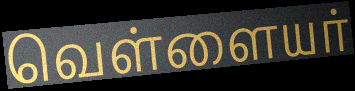
வெள்ளையர்